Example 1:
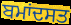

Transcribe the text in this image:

ਬਮਾਂਦਸਤ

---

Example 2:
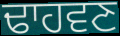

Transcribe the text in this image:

ਢਾਹਵਣ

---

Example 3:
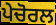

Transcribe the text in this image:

ਪੇਚੋਰਲ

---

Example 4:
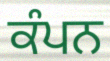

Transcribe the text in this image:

ਕੰਪਨ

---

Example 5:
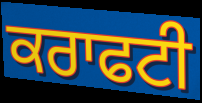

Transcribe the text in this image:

ਕਰਾਫਟੀ